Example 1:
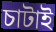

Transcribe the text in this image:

চাটাই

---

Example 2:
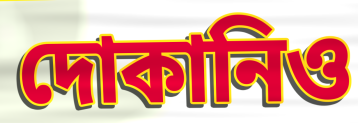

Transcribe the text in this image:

দোকানিও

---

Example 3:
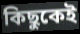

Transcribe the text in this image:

কিছুকেই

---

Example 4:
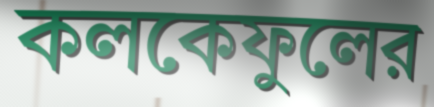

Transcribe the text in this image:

কলকেফুলের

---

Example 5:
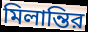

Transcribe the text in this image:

মিলান্তির